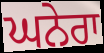
ਘਨੇਰਾ